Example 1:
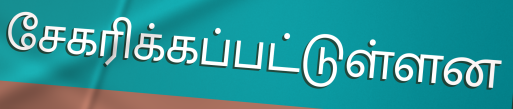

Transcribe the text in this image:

சேகரிக்கப்பட்டுள்ளன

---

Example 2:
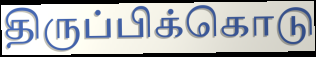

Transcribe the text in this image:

திருப்பிக்கொடு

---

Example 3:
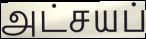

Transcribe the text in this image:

அட்சயப்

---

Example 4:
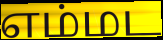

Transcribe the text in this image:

எம்மட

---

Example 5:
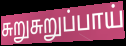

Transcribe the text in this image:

சுறுசுறுப்பாய்